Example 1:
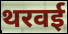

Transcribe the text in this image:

थरवई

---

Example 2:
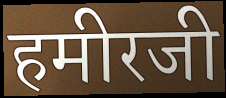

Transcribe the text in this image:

हमीरजी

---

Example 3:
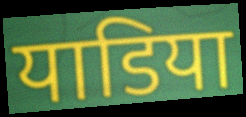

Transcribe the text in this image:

याडिया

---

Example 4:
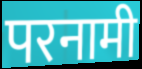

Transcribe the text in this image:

परनामी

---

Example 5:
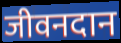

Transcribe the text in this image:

जीवनदान